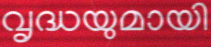
വൃദ്ധയുമായി